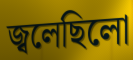
জ্বলেছিলো